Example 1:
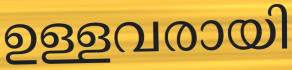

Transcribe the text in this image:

ഉള്ളവരായി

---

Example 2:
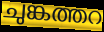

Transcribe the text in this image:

ചുങ്കത്തറ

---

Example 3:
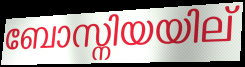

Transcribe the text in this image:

ബോസ്നിയയില്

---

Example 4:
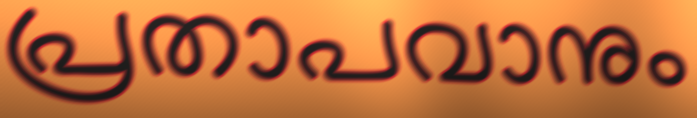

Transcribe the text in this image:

പ്രതാപവാനും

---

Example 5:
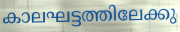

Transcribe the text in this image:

കാലഘട്ടത്തിലേക്കു